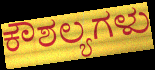
ಕೌಶಲ್ಯಗಳು